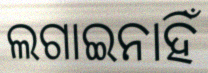
ଲଗାଇନାହିଁ